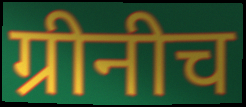
ग्रीनीच